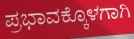
ಪ್ರಭಾವಕ್ಕೊಳಗಾಗಿ